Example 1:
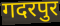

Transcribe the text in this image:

गदरपुर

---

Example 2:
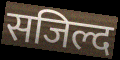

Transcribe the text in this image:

सजिल्द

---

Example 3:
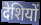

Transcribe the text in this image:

देशियों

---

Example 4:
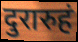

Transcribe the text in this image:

दुरारुहं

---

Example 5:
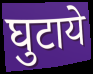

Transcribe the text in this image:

घुटाये